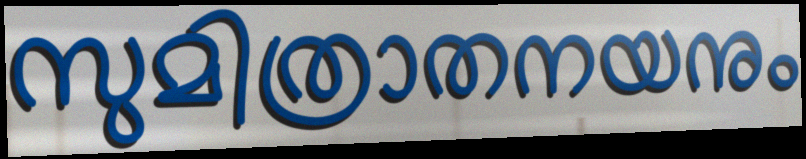
സുമിത്രാതനയനും